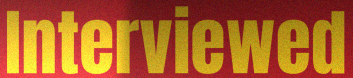
Interviewed